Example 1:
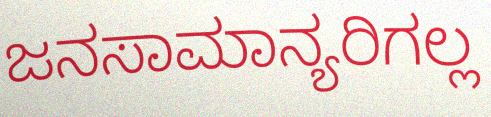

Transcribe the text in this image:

ಜನಸಾಮಾನ್ಯರಿಗಲ್ಲ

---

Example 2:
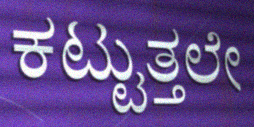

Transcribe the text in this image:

ಕಟ್ಟುತ್ತಲೇ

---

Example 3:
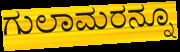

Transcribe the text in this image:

ಗುಲಾಮರನ್ನೂ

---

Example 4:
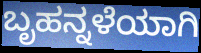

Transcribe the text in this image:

ಬೃಹನ್ನಳೆಯಾಗಿ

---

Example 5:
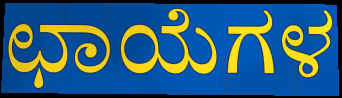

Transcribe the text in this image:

ಛಾಯೆಗಳ